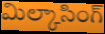
మిల్కాసింగ్